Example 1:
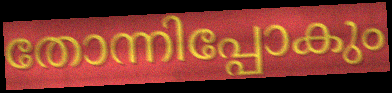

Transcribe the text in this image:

തോന്നിപ്പോകും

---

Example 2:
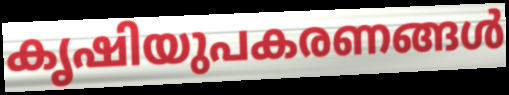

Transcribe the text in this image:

കൃഷിയുപകരണങ്ങൾ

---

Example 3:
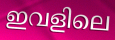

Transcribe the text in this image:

ഇവളിലെ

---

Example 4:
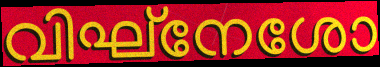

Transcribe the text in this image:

വിഘ്നേശോ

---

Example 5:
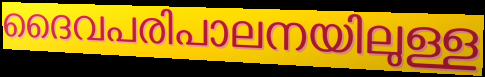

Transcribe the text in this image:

ദൈവപരിപാലനയിലുള്ള